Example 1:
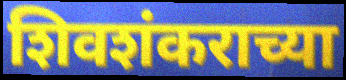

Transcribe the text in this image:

शिवशंकराच्या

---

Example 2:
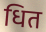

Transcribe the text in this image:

धित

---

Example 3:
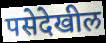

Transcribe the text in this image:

पसेदेखील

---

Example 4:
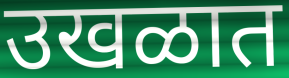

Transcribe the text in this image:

उखळात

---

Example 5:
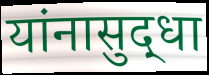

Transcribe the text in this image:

यांनासुद्धा